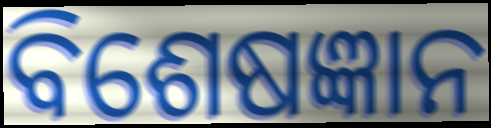
ବିଶେଷଜ୍ଞାନ